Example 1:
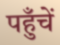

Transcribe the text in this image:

पहुँचें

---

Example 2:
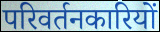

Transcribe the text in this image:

परिवर्तनकारियों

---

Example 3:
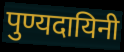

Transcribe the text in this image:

पुण्यदायिनी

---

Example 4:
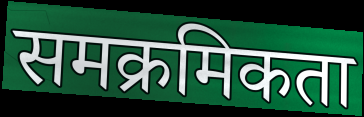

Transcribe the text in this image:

समक्रमिकता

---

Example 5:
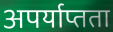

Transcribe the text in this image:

अपर्याप्तता